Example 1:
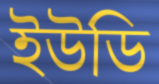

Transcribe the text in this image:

ইউডি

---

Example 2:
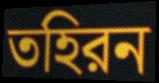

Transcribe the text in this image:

তহিরন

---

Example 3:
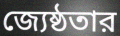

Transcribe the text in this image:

জ্যেষ্ঠতার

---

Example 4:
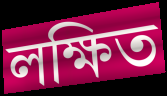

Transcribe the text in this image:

লক্ষিত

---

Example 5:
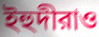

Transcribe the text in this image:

ইহুদীরাও